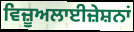
ਵਿਜ਼ੂਅਲਾਈਜ਼ੇਸ਼ਨਾਂ